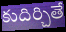
కుదిర్చితే